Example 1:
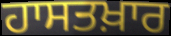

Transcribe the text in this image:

ਹਾਸਤਖ਼ਾਰ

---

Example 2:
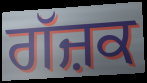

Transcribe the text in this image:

ਗੱਜ਼ਕ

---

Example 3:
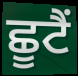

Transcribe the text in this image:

ਛੂਟੈਂ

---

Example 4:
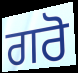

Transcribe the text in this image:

ਗਰੋ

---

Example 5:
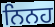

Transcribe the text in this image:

ਨਿਨਹ